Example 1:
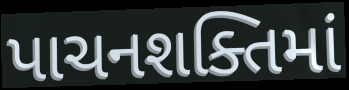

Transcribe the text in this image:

પાચનશક્તિમાં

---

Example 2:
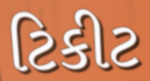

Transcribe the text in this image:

ટિકીટ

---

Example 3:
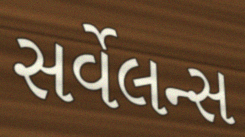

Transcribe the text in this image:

સર્વેલન્સ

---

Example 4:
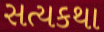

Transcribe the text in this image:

સત્યકથા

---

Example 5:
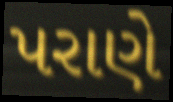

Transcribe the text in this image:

પરાણે